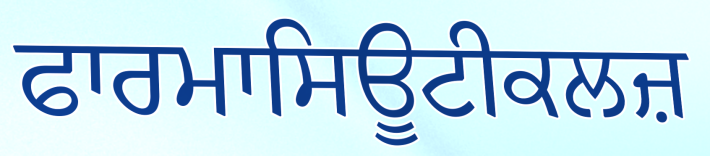
ਫਾਰਮਾਸਿਊਟੀਕਲਜ਼